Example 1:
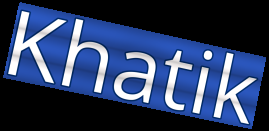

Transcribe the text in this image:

Khatik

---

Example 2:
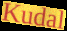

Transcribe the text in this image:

Kudal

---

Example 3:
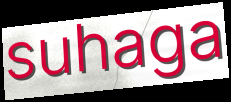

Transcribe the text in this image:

suhaga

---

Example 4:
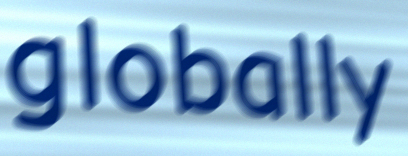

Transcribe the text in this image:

globally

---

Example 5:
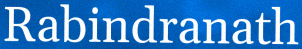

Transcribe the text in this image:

Rabindranath